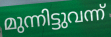
മുന്നിട്ടുവന്ന്